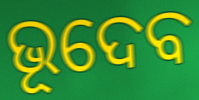
ଭୂଦେବ